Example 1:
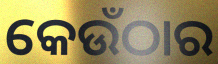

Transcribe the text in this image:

କେଉଁଠାର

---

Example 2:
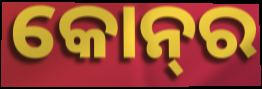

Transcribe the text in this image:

କୋନ୍‌ର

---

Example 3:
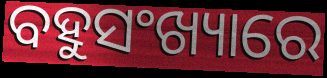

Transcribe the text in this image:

ବହୁସଂଖ୍ୟାରେ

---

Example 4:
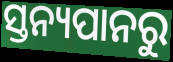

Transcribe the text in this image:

ସ୍ତନ୍ୟପାନରୁ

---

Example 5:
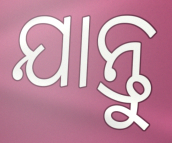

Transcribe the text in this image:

ଯାନ୍ତୁ